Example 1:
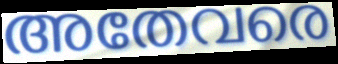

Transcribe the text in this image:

അതേവരെ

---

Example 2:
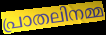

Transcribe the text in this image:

പ്രാതലിനമ്മ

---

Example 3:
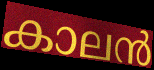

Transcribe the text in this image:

കാലൻ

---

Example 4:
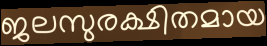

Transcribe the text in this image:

ജലസുരക്ഷിതമായ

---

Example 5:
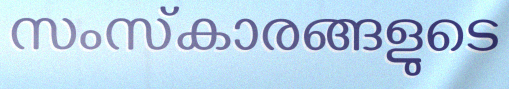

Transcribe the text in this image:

സംസ്‌കാരങ്ങളുടെ